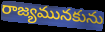
రాజ్యమునకును